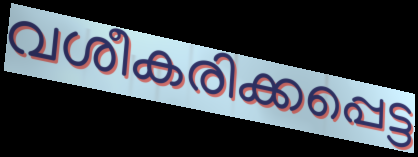
വശീകരിക്കപ്പെട്ട